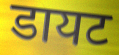
डायट